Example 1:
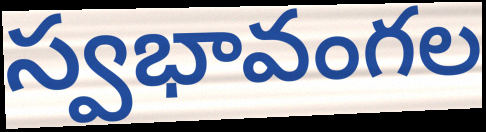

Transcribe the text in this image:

స్వభావంగల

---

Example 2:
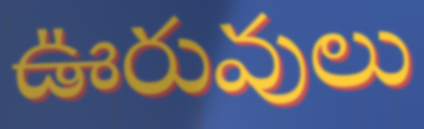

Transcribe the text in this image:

ఊరువులు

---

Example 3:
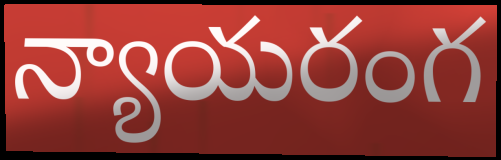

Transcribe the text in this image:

న్యాయరంగ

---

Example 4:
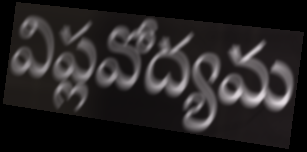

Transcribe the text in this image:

విప్లవోద్యమ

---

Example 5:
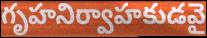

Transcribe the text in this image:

గృహనిర్వాహకుడవై